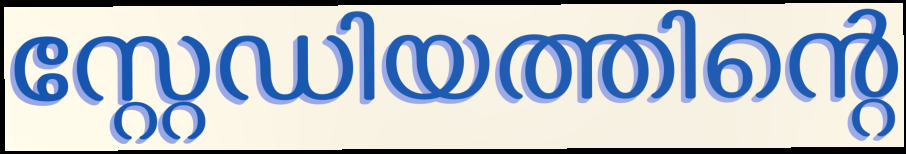
സ്റ്റേഡിയത്തിന്റെ